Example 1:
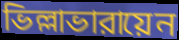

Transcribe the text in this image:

ভিল্লাভারায়েন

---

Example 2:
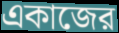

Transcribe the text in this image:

একাজের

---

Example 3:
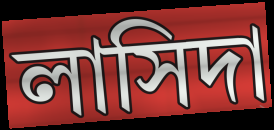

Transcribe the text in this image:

লাসিদা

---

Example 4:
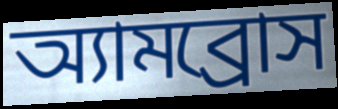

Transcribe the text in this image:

অ্যামব্রোস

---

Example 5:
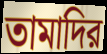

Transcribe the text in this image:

তামাদির